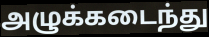
அழுக்கடைந்து